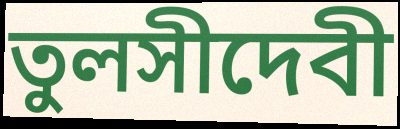
তুলসীদেবী